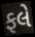
ફલે